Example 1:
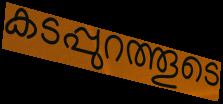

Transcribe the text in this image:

കടപ്പുറത്തൂടെ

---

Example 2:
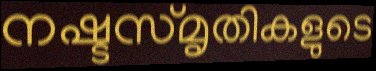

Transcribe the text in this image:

നഷ്ടസ്മൃതികളുടെ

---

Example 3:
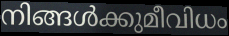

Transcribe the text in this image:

നിങ്ങൾക്കുമീവിധം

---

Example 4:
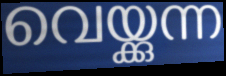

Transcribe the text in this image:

വെയ്ക്കുന്ന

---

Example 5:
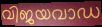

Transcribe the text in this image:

വിജയവാഡ